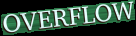
OVERFLOW